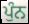
ਪੁੰਨ